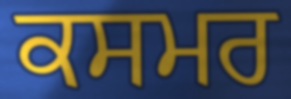
ਕਸਮਰ